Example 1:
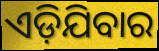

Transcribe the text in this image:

ଏଡ଼ିଯିବାର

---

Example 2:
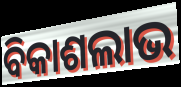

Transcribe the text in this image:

ବିକାଶଲାଭ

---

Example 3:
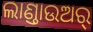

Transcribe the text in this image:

ଲାଣ୍ଡାଉଅର୍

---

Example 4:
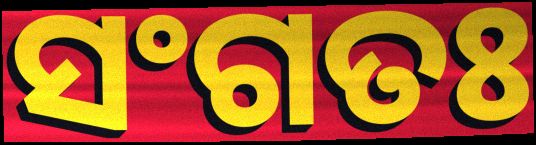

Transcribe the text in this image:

ସଂଗତଃ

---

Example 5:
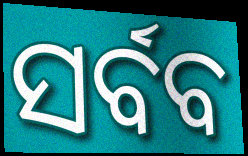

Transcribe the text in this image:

ସର୍ବବ